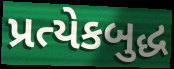
પ્રત્યેકબુદ્ધ